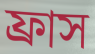
ফ্রাস